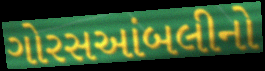
ગોરસઆંબલીનો